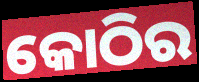
କୋଠିର